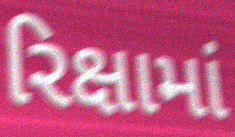
રિક્ષામાં